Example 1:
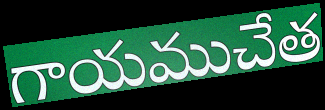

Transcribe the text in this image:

గాయముచేత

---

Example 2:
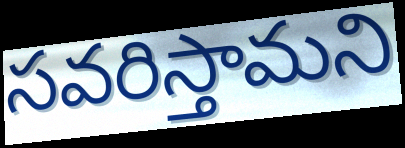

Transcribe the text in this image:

సవరిస్తామని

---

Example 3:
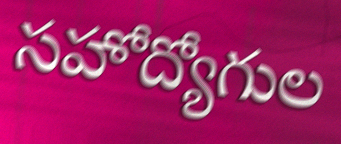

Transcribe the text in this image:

సహోద్యోగుల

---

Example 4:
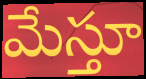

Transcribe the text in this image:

మేస్తూ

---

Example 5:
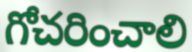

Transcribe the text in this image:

గోచరించాలి